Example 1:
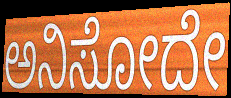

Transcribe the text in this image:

ಅನಿಸೋದೇ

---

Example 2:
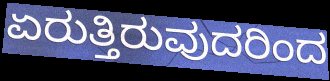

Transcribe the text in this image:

ಏರುತ್ತಿರುವುದರಿಂದ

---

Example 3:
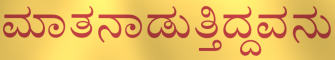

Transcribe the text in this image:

ಮಾತನಾಡುತ್ತಿದ್ದವನು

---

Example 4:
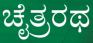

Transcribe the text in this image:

ಚೈತ್ರರಥ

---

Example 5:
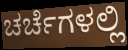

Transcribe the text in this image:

ಚರ್ಚೆಗಳಲ್ಲಿ